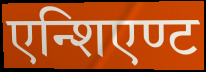
एन्शिएण्ट